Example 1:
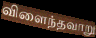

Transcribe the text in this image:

விளைந்தவாறு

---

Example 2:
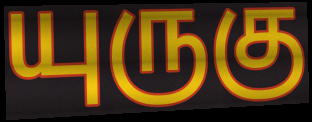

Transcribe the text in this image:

யுருகு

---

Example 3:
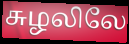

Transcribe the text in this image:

சுழலிலே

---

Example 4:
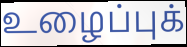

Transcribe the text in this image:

உழைப்புக்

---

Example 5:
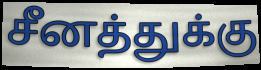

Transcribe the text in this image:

சீனத்துக்கு